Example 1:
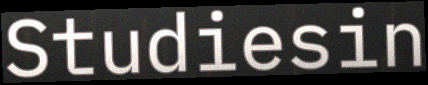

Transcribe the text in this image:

Studiesin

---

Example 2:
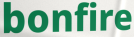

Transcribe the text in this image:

bonfire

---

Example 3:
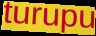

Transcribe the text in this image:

turupu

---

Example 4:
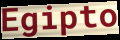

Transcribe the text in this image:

Egipto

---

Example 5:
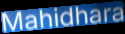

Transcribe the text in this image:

Mahidhara